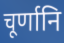
चूर्णानि